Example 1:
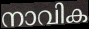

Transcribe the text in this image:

നാവിക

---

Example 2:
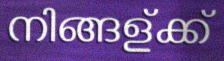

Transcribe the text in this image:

നിങ്ങള്ക്ക്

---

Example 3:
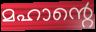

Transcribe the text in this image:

മഹാന്റെ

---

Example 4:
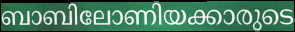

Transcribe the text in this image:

ബാബിലോണിയക്കാരുടെ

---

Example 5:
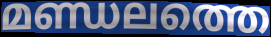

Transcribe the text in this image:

മണ്ഡലത്തെ